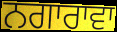
ਨਗਾਰਾਵਾ